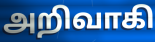
அறிவாகி